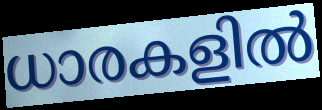
ധാരകളിൽ